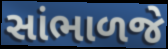
સાંભાળજે